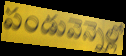
పండువెన్నెల్లో